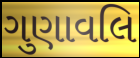
ગુણાવલિ